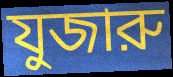
যুজাৰু